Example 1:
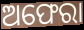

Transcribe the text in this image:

ଅଫେରା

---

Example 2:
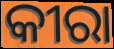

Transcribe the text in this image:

କୀରା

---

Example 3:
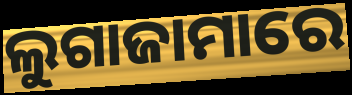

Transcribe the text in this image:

ଲୁଗାଜାମାରେ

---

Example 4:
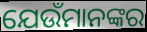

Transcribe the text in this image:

ଯେଉଁମାନଙ୍କର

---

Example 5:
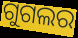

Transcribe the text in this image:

ଗୁଗଲର